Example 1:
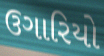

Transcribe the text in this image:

ઉગારિયો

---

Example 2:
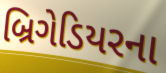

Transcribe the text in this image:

બ્રિગેડિયરના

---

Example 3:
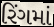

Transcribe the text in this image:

રિંગમાં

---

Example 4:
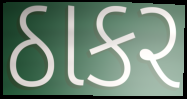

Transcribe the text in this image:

ઠાકર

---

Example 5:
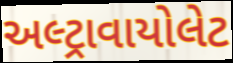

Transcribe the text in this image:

અલ્ટ્રાવાયોલેટ